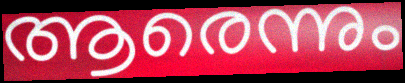
ആരെന്നും